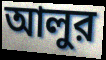
আলুর